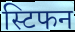
स्टिफन